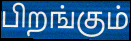
பிறங்கும்